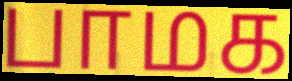
பாமக